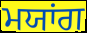
ਮਯਾਂਗ